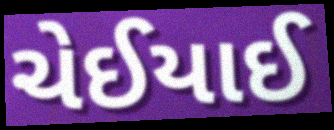
ચેઈયાઈ